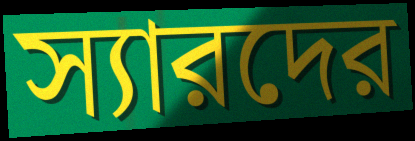
স্যারদের